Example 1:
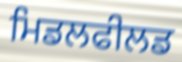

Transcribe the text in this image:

ਮਿਡਲਫੀਲਡ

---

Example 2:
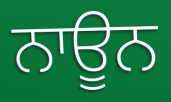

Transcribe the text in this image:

ਨਾਊਨ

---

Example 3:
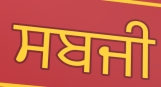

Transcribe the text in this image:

ਸਬਜੀ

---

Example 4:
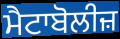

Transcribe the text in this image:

ਮੈਟਾਬੋਲੀਜ਼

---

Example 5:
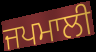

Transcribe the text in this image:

ਜਪਮਾਲੀ